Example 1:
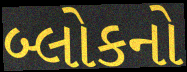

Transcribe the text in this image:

બ્લોકનો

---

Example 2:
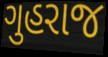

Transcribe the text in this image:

ગુહરાજ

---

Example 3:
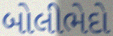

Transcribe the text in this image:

બોલીભેદો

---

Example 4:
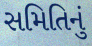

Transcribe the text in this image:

સમિતિનું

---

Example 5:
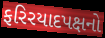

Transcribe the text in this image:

ફરિરયાદપક્ષનો